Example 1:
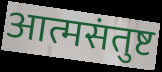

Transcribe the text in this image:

आत्मसंतुष्ट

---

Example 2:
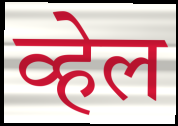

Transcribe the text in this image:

व्हेल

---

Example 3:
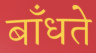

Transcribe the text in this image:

बाँधते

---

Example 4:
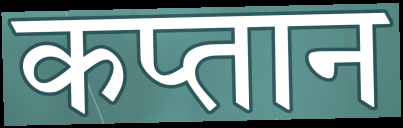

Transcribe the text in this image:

कप्‍तान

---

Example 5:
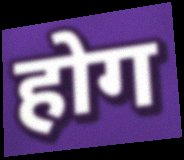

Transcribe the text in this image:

होग